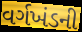
વર્ગખંડની